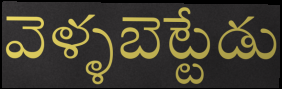
వెళ్ళబెట్టేడు